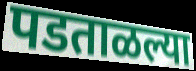
पडताळल्या